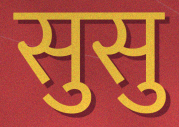
सुसु